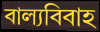
বাল্যবিবাহ